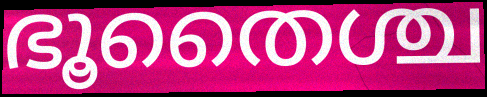
ഭൂതൈശ്ച